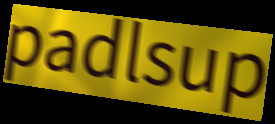
padlsup